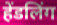
हेंडलिंग